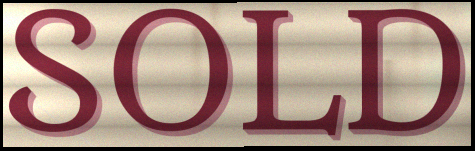
SOLD